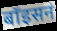
बॉइसनं